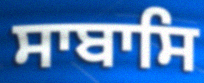
ਸਾਬਾਸਿ